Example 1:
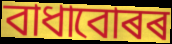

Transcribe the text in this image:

বাধাবোৰৰ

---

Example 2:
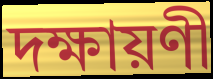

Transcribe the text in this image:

দক্ষায়ণী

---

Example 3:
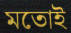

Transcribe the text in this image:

মতোই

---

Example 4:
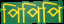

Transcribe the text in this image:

পিপিপি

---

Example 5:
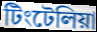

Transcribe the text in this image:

টিংটেলিয়া